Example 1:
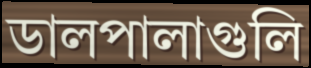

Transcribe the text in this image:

ডালপালাগুলি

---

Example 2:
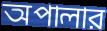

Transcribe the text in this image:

অপালার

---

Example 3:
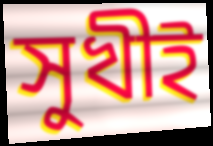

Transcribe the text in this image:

সুখীই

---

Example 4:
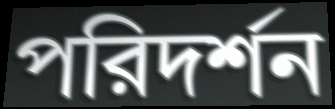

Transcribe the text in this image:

পরিদর্শন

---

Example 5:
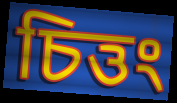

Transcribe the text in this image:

চিত্তং